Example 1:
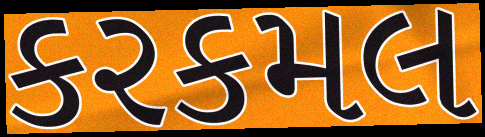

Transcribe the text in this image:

કરકમલ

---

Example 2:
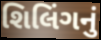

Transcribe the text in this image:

શિલિંગનું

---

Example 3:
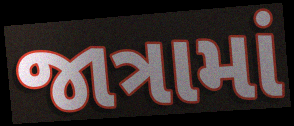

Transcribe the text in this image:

જાત્રામાં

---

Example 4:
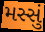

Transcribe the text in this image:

મસ્સું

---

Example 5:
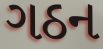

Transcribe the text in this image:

ગઠન